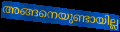
അങ്ങനെയുണ്ടായില്ല